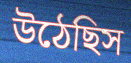
উঠেছিস